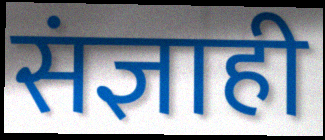
संज्ञाही